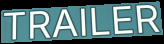
TRAILER